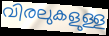
വിരലുകളുള്ള